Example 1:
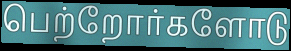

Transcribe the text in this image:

பெற்றோர்களோடு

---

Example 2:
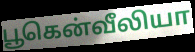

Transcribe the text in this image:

பூகென்வீலியா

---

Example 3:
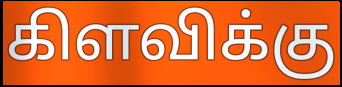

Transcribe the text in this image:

கிளவிக்கு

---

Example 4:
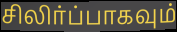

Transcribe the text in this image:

சிலிர்ப்பாகவும்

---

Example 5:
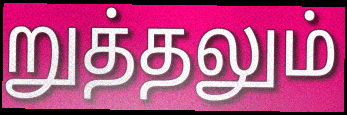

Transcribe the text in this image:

றுத்தலும்